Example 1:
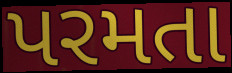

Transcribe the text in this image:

પરમતા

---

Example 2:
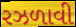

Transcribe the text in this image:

રઝળાવી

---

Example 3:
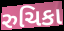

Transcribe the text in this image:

રુચિકા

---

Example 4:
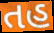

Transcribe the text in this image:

તહ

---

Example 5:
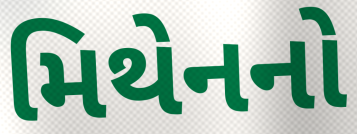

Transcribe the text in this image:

મિથેનનો